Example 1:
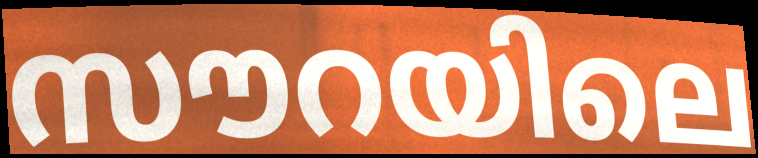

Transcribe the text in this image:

സൗറയിലെ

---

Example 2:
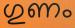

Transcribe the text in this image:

ഗുണം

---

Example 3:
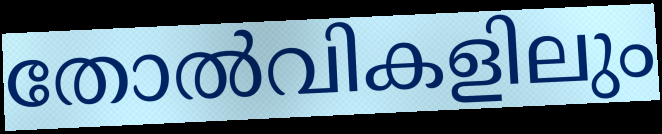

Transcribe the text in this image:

തോൽവികളിലും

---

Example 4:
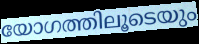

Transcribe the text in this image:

യോഗത്തിലൂടെയും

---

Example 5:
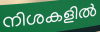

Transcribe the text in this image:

നിശകളിൽ